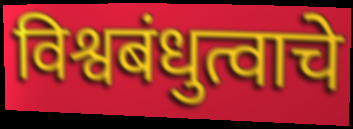
विश्वबंधुत्वाचे